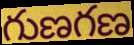
గుణగణ